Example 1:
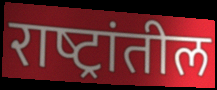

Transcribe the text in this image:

राष्ट्रांतील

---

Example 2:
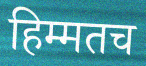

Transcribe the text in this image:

हिम्मतच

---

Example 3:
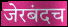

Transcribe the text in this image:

जेरबंदच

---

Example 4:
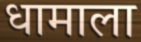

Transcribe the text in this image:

धामाला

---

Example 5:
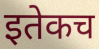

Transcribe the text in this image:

इतेकच